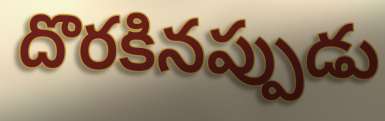
దొరకినప్పుడు